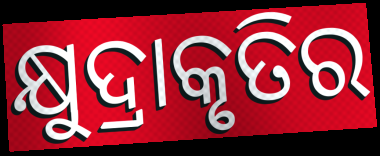
କ୍ଷୁଦ୍ରାକୃତିର